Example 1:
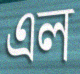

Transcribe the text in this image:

এল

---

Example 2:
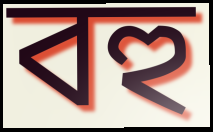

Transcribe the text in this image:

বহু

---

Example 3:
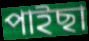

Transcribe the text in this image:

পাইছা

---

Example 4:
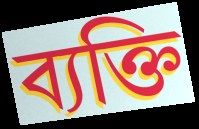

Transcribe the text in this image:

ব্যক্তি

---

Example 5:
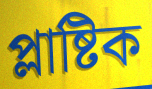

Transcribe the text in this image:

প্লাষ্টিক